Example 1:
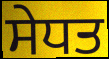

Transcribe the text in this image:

ਸੇਧਤ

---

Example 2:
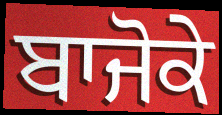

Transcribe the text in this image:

ਬਾਜੋਕੇ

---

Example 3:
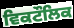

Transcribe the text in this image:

ਵਿਕਟੌਲਿਕ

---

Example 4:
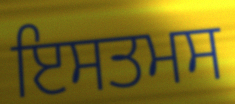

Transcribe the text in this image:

ਇਸਤਮਸ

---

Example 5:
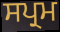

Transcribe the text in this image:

ਸਪ੍ਰਮ